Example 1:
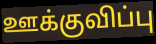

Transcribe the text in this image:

ஊக்குவிப்பு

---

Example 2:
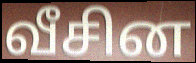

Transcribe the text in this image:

வீசின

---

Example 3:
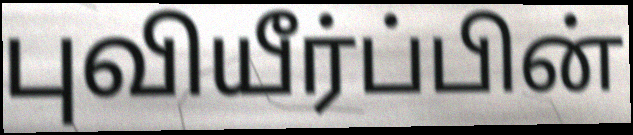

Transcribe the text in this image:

புவியீர்ப்பின்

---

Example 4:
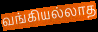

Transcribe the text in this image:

வங்கியல்லாத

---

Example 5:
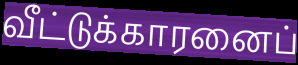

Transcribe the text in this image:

வீட்டுக்காரனைப்